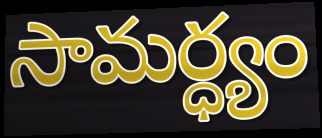
సామర్ధ్యం